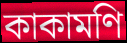
কাকামণি